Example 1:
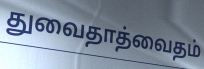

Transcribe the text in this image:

துவைதாத்வைதம்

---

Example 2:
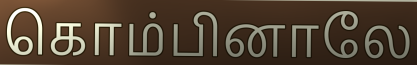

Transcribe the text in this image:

கொம்பினாலே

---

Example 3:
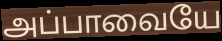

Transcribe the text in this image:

அப்பாவையே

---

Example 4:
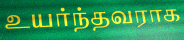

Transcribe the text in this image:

உயர்ந்தவராக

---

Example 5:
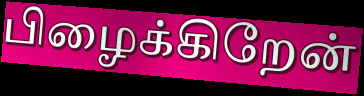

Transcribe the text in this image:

பிழைக்கிறேன்